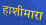
हाशीमारा